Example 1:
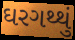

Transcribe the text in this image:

ઘરગથ્થું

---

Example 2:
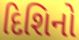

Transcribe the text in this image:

દિશિનો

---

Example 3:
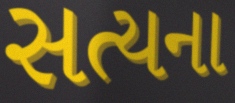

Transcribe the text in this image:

સત્યના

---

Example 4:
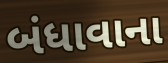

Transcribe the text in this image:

બંધાવાના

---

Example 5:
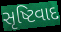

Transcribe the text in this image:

સૃષ્ટિવાદ